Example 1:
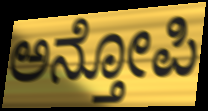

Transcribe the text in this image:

ಅನ್ತೋಪಿ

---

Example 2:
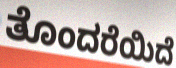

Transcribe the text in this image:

ತೊಂದರೆಯಿದೆ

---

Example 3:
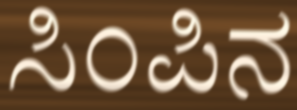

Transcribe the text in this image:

ಸಿಂಪಿನ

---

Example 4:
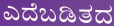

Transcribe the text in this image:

ಎದೆಬಡಿತದ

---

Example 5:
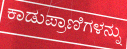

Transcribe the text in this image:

ಕಾಡುಪ್ರಾಣಿಗಳನ್ನು